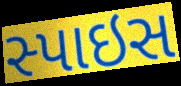
સ્પાઇસ